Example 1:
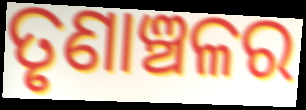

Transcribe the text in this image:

ତୃଣାଞ୍ଚଳର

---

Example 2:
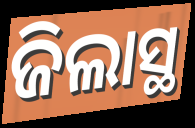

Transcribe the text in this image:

ଜିଲାସ୍ଥ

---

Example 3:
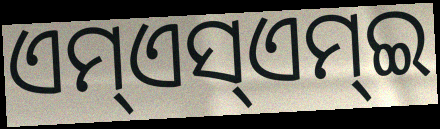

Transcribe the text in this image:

ଏମ୍ଏସ୍ଏମ୍ଇ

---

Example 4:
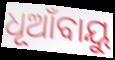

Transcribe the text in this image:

ଧୂଆଁବାୟୁ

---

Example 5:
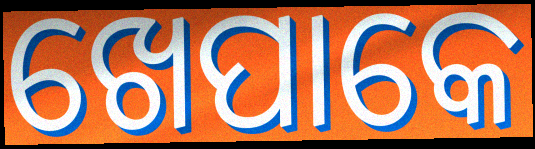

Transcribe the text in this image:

ଖେପାକେ